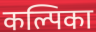
कल्पिका